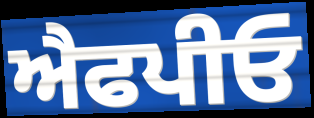
ਐਫਪੀਓ